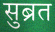
सुब्रत